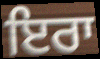
ਇਰਾ